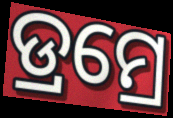
ଡ୍ରମ୍ରେ